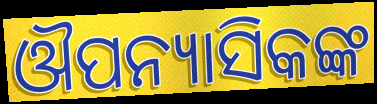
ଔପନ୍ୟାସିକଙ୍କ